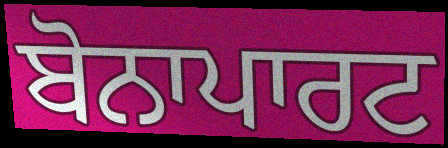
ਬੋਨਾਪਾਰਟ